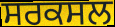
ਸਰਕਸਲ